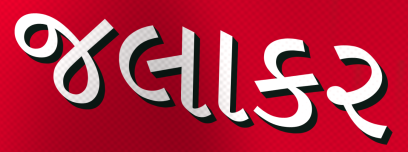
જલાકર